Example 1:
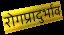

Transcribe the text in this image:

रोगप्रादुर्भाव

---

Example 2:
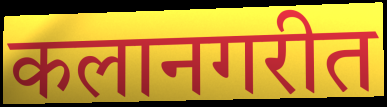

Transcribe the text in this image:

कलानगरीत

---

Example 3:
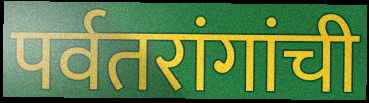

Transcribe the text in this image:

पर्वतरांगांची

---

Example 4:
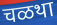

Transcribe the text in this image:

चळथा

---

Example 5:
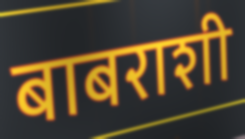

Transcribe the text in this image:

बाबराशी